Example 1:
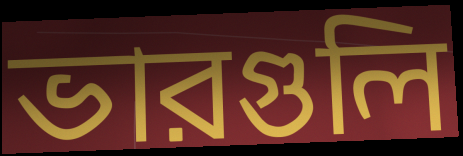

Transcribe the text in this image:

ভারগুলি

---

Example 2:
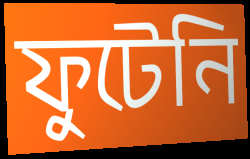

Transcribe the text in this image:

ফুটেনি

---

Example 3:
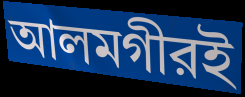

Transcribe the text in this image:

আলমগীরই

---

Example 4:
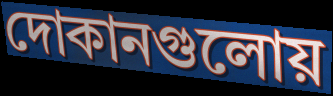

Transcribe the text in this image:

দোকানগুলোয়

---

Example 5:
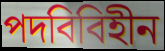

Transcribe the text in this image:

পদবিবিহীন